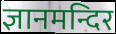
ज्ञानमन्दिर